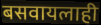
बसवायलाही